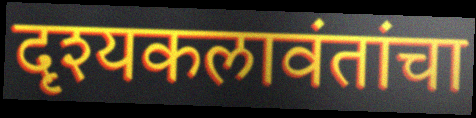
दृश्यकलावंतांचा